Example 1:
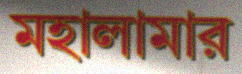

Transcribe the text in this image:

মহালামার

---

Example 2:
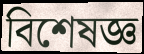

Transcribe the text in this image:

বিশেষজ্ঞ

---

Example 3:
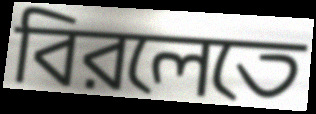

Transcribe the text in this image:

বিরলেতে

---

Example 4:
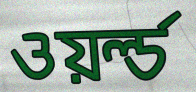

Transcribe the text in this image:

ওয়র্ল্ড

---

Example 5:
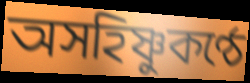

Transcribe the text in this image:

অসহিষ্ণুকণ্ঠে